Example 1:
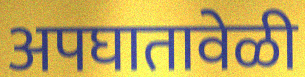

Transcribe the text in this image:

अपघातावेळी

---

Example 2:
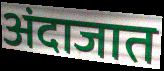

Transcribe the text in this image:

अंदाजात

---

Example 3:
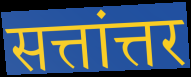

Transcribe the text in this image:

सत्तांत्तर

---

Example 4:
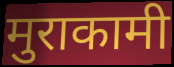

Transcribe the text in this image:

मुराकामी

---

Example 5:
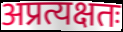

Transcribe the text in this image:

अप्रत्यक्षतः